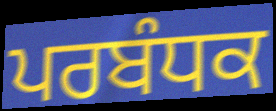
ਪਰਬੰਧਕ